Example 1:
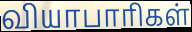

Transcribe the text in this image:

வியாபாரிகள்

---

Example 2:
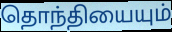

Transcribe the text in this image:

தொந்தியையும்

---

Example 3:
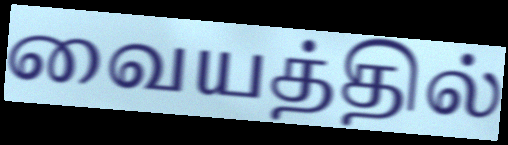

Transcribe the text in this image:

வையத்தில்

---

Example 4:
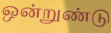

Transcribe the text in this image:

ஒன்றுண்டு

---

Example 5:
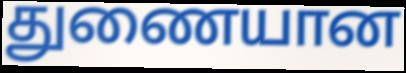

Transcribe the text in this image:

துணையான